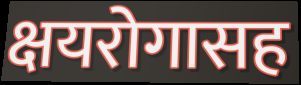
क्षयरोगासह